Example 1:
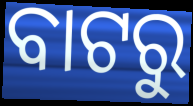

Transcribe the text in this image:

ବାଟରୁ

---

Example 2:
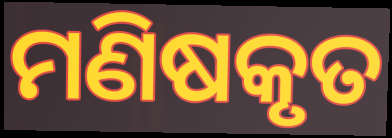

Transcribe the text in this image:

ମଣିଷକୃତ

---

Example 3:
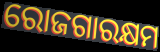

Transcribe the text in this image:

ରୋଜଗାରକ୍ଷମ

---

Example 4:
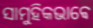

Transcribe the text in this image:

ସାମୁହିକଭାଵେ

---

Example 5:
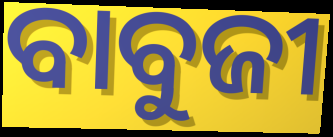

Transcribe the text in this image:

ବାବୁଜୀ